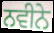
ਨਵੀਨੇ